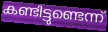
കണ്ടിട്ടുണ്ടെന്ന്